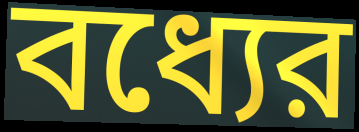
বধ্যের